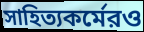
সাহিত্যকর্মেরও